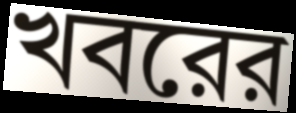
খবরের